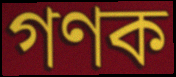
গণক